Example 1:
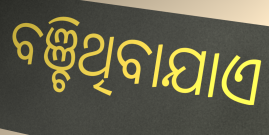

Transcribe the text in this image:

ବଞ୍ଚିଥିବାଯାଏ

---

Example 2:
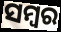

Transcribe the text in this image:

ସମ୍ବର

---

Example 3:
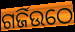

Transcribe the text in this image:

ଗର୍ଜିଉଠେ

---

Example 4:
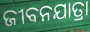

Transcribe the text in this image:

ଜୀବନଯାତ୍ରା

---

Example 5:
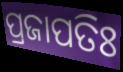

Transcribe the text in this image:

ପ୍ରଜାପତିଃ